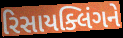
રિસાયક્લિંગને